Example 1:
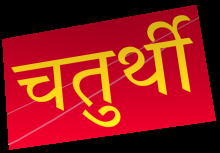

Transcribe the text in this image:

चतुर्थी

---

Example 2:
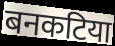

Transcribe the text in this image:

बनकटिया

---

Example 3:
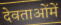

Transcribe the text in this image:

देवताओंमें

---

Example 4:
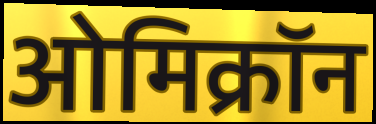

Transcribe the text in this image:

ओमिक्रॉन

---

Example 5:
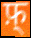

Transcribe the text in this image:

फ़्